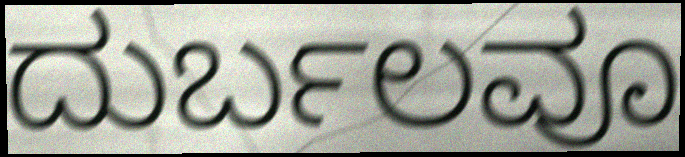
ದುರ್ಬಲವೂ